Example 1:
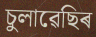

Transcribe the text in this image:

চুলাৱেছিৰ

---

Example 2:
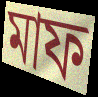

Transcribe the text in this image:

মাফ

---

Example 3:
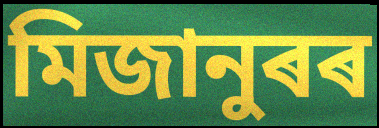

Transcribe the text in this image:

মিজানুৰৰ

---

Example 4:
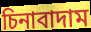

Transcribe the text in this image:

চিনাবাদাম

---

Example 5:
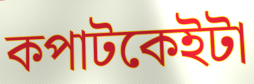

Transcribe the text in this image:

কপাটকেইটা